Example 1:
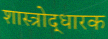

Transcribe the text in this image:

शास्त्रोद्धारक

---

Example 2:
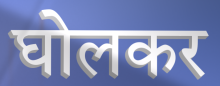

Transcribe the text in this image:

घोलकर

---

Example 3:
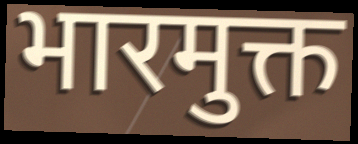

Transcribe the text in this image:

भारमुक्त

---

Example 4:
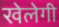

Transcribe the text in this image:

खेलेगी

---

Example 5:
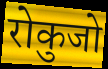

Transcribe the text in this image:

रोकुजो